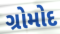
ગ્રોમોદ